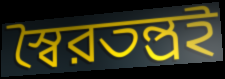
স্বৈরতন্ত্রই